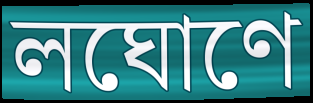
লঘোণে